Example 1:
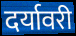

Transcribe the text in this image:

दर्यावरी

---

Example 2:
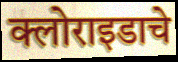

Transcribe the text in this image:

क्लोराइडाचे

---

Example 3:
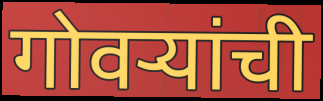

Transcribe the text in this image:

गोवऱ्यांची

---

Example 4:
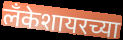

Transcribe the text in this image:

लँकेशायरच्या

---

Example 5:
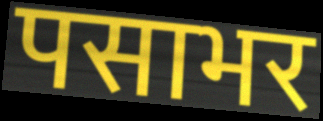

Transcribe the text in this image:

पसाभर